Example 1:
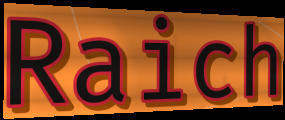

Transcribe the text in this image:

Raich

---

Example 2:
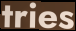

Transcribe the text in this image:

tries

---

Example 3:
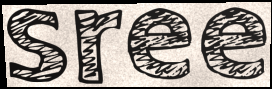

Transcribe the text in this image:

sree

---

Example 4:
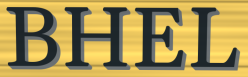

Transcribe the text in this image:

BHEL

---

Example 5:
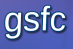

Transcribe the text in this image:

gsfc